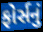
ફોર્સનું